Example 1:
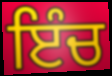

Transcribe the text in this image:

ਇੰਚ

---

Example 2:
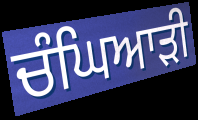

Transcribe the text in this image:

ਚੰਘਿਆੜੀ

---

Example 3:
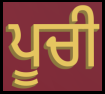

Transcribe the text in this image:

ਪੂਚੀ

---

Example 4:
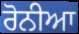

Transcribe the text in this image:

ਰੋਨੀਆ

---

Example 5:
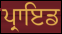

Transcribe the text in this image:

ਪ੍ਰਾਇਡ